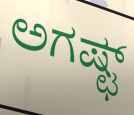
ಅಗಷ್ಟ್